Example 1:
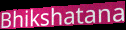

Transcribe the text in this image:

Bhikshatana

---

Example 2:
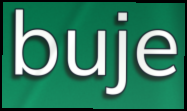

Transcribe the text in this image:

buje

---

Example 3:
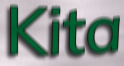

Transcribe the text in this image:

Kita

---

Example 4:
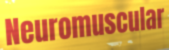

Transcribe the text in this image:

Neuromuscular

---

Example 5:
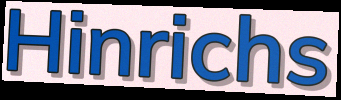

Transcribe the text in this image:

Hinrichs